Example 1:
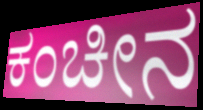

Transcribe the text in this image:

ಕಂಚೀನ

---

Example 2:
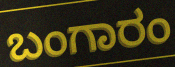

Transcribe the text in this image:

ಬಂಗಾರಂ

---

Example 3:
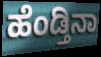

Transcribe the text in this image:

ಹೆಂಡ್ತಿನಾ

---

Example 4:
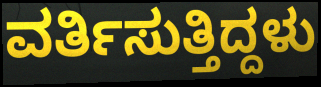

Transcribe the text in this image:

ವರ್ತಿಸುತ್ತಿದ್ದಳು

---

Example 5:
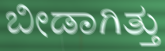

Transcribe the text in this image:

ಬೀಡಾಗಿತ್ತು